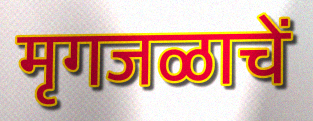
मृगजळाचें